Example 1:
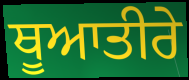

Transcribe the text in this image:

ਥੂਆਤੀਰੇ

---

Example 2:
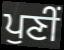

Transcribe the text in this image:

ਪੁਣੀਂ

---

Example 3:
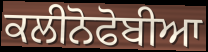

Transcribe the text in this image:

ਕਲੀਨੋਫੋਬੀਆ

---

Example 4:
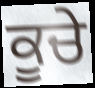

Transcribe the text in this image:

ਕੂਚੇ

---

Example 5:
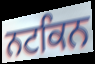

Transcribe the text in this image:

ਨਟਕਿਨ